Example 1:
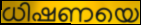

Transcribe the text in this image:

ധിഷണയെ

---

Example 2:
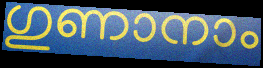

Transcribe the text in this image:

ഗുണാനാം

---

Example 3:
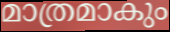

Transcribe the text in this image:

മാത്രമാകും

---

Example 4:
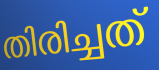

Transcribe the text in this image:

തിരിച്ചത്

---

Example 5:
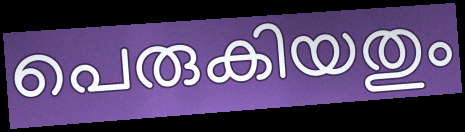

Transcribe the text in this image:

പെരുകിയതും